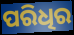
ପରିଧିର